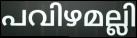
പവിഴമല്ലി